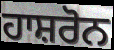
ਹਾਸ਼ਰੋਨ